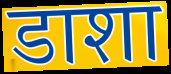
डाशा